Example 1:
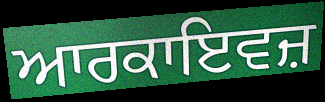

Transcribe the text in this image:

ਆਰਕਾਇਵਜ਼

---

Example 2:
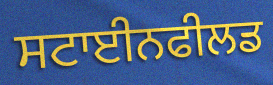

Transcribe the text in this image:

ਸਟਾਈਨਫੀਲਡ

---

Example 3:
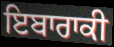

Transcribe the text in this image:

ਇਬਾਰਾਕੀ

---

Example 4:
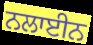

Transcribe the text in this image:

ਨਲਾਈਨ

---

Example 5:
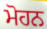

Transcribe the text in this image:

ਮੋਹਨ